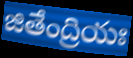
జితేంద్రియః